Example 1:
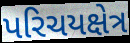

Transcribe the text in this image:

પરિચયક્ષેત્ર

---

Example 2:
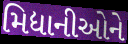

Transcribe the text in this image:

મિદ્યાનીઓને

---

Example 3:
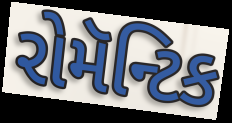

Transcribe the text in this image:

રોમૅન્ટિક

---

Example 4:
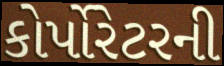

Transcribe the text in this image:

કોર્પોરેટરની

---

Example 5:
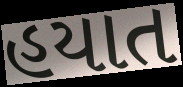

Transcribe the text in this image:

હયાત